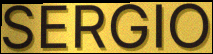
SERGIO